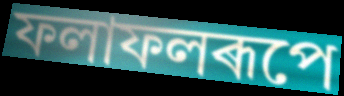
ফলাফলৰূপে